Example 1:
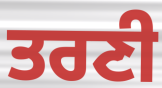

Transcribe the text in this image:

ਤਰਣੀ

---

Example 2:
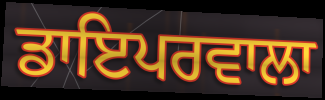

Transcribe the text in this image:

ਡਾਇਪਰਵਾਲਾ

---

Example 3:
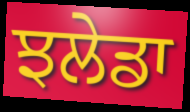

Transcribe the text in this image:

ਝਲੇਡਾ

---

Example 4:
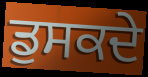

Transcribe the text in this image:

ਡੁਸਕਦੇ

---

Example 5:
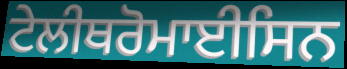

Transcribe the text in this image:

ਟੇਲੀਥਰੋਮਾਈਸਿਨ